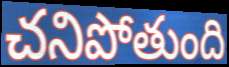
చనిపోతుంది